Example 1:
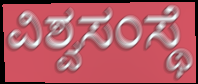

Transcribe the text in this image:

ವಿಶ್ವಸಂಸ್ಥೆ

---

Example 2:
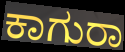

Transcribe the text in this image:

ಕಾಗುರಾ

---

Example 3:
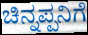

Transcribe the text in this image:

ಚಿನ್ನಪ್ಪನಿಗೆ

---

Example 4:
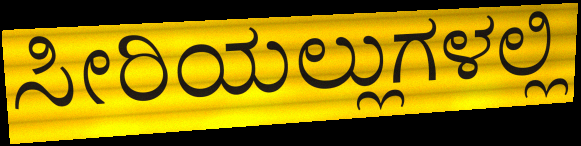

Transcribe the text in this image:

ಸೀರಿಯಲ್ಲುಗಳಲ್ಲಿ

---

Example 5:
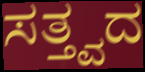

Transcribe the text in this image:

ಸತ್ತ್ವದ